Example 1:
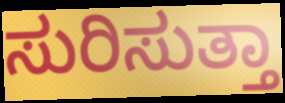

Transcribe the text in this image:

ಸುರಿಸುತ್ತಾ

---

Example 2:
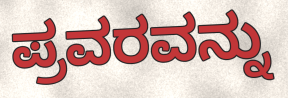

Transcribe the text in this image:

ಪ್ರವರವನ್ನು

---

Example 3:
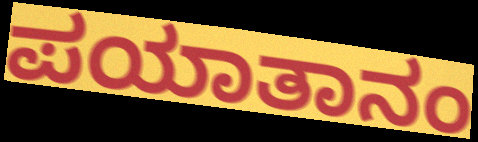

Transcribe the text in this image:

ಪಯಾತಾನಂ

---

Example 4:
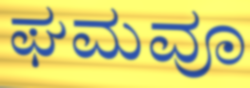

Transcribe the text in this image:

ಘಮವೂ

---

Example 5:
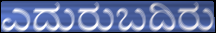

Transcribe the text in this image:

ಎದುರುಬದಿರು